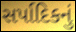
સર્પાદિકનું